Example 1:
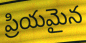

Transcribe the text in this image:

ప్రియమైన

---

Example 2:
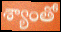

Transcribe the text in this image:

శ్యాంతో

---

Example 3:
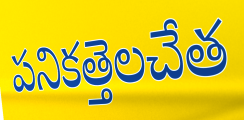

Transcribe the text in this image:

పనికత్తెలచేత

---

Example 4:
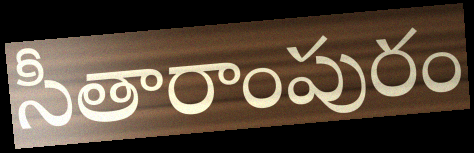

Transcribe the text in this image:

సీతారాంపురం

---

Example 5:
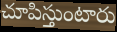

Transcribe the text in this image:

చూపిస్తుంటారు